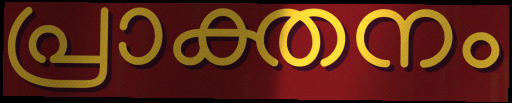
പ്രാക്തനം